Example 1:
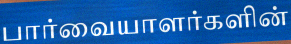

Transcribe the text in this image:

பார்வையாளர்களின்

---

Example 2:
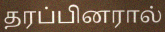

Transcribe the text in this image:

தரப்பினரால்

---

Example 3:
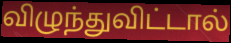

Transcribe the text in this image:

விழுந்துவிட்டால்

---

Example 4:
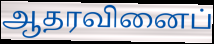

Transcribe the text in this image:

ஆதரவினைப்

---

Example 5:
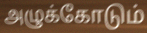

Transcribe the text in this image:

அழுக்கோடும்